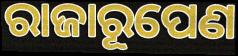
ରାଜାରୂପେଣ